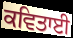
ਕਵਿਤਾਈ